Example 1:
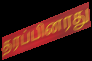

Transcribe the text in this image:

தரப்பினரது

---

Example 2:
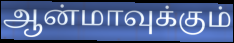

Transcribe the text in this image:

ஆன்மாவுக்கும்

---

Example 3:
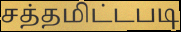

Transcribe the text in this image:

சத்தமிட்டபடி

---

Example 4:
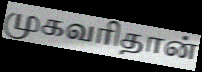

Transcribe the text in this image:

முகவரிதான்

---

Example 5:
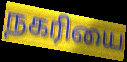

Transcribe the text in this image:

நகரியை